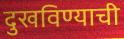
दुखविण्याची